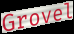
Grovel